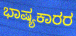
ಭಾಷ್ಯಕಾರರ